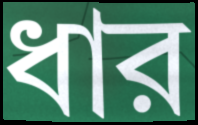
ধার